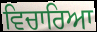
ਵਿਚਾਰਿਆ